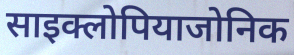
साइक्लोपियाजोनिक